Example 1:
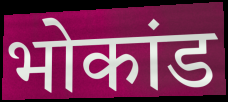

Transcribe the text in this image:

भोकांड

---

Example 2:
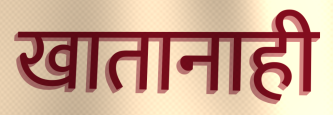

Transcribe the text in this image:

खातानाही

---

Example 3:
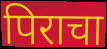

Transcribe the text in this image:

पिराचा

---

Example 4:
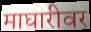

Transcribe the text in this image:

माघारीवर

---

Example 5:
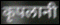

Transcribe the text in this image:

कृपलानी